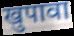
खुपावा